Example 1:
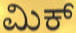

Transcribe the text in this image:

ಮಿಕ್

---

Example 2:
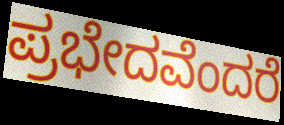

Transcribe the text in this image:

ಪ್ರಭೇದವೆಂದರೆ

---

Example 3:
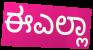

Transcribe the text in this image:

ಈಎಲ್ಲಾ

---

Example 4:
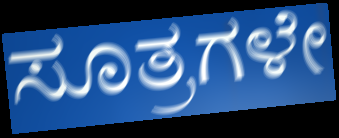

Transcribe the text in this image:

ಸೂತ್ರಗಳೇ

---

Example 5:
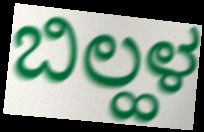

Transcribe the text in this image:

ಬಿಲ್ಹಳ